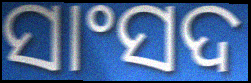
ସାଂସଦ